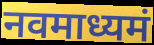
नवमाध्यमं